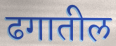
ढगातील